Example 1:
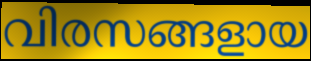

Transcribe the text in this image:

വിരസങ്ങളായ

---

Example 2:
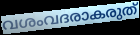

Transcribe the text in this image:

വശംവദരാകരുത്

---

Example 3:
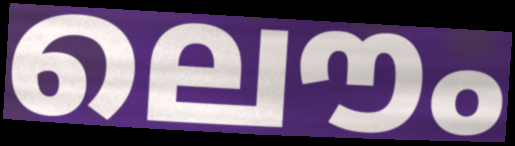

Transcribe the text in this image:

ലൌം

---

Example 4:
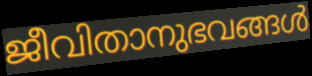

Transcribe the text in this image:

ജീവിതാനുഭവങ്ങൾ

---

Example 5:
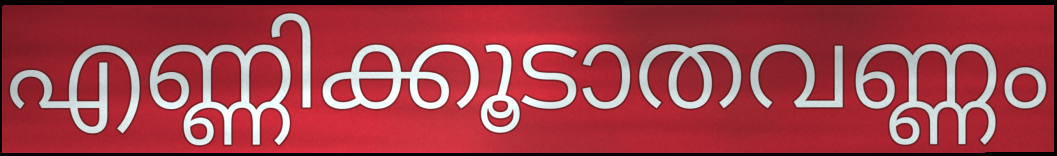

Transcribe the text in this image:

എണ്ണിക്കൂടാതവണ്ണം